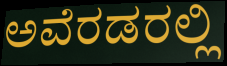
ಅವೆರಡರಲ್ಲಿ